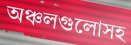
অঞ্চলগুলোসহ